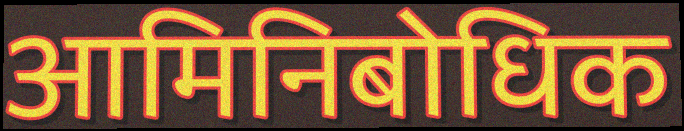
आमिनिबोधिक